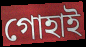
গোহাই